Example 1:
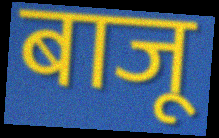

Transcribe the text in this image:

बाजू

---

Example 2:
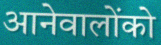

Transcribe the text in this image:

आनेवालोंको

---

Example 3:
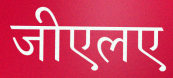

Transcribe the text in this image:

जीएलए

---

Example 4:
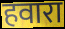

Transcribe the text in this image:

हवारा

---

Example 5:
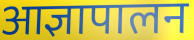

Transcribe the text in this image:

आज्ञापालन